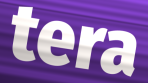
tera